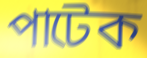
পাটেক